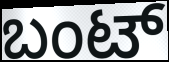
ಬಂಟ್